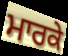
ਮਾਰਕੇ